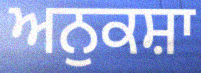
ਅਨੁਕਸ਼ਾ